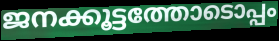
ജനക്കൂട്ടത്തോടൊപ്പം